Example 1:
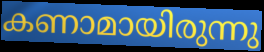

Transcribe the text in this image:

കണാമായിരുന്നു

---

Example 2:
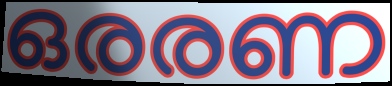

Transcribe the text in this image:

ഒരരണ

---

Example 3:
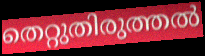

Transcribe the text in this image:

തെറ്റുതിരുത്തൽ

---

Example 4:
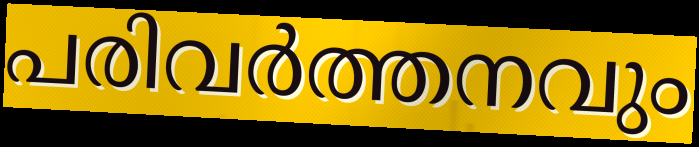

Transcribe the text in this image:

പരിവർത്തനവും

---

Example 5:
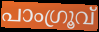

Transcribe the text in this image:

പാംഗ്രൂവ്